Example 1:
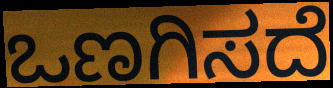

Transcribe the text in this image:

ಒಣಗಿಸದೆ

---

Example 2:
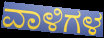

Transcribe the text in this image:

ವಾಳಿಗಳ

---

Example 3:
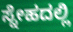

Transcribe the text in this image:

ಸ್ನೇಹದಲ್ಲಿ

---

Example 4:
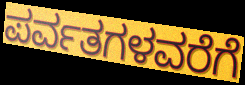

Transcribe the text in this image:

ಪರ್ವತಗಳವರೆಗೆ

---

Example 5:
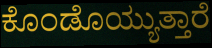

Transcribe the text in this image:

ಕೊಂಡೊಯ್ಯುತ್ತಾರೆ